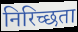
निरिच्छता